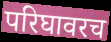
परिघावरच